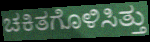
ಚಕಿತಗೊಳಿಸಿತ್ತು